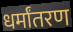
धर्मांतरण